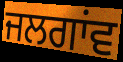
ਜਲਗਾਂਵ